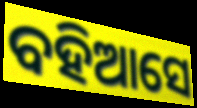
ବହିଆସେ